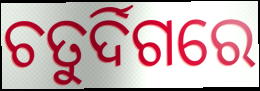
ଚତୁର୍ଦିଗରେ